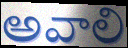
అవాలి